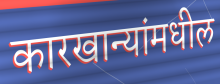
कारखान्यांमधील